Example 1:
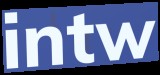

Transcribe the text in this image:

intw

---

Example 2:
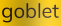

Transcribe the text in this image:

goblet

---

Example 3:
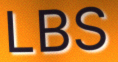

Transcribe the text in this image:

LBS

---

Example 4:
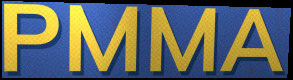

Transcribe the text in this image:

PMMA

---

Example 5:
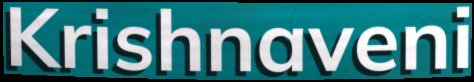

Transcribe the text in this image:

Krishnaveni